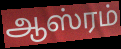
ஆஸ்ரம்